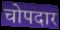
चोपदार